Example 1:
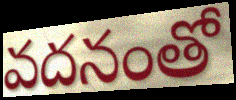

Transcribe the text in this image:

వదనంతో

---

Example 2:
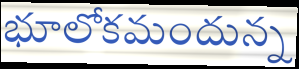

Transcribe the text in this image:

భూలోకమందున్న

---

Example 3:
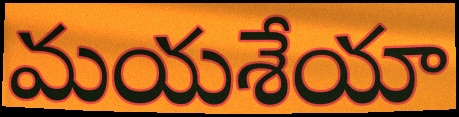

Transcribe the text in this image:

మయశేయా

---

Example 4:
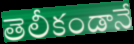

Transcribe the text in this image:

తెలీకండానే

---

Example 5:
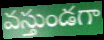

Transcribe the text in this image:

వస్తుండగా